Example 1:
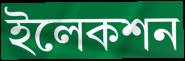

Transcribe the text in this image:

ইলেকশন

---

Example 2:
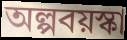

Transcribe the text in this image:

অল্পবয়স্কা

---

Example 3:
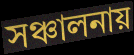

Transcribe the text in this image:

সঞ্চালনায়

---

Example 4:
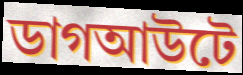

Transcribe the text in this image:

ডাগআউটে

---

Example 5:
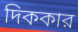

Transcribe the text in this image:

দিককার